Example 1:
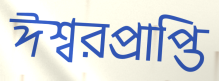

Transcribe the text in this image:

ঈশ্বরপ্রাপ্তি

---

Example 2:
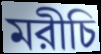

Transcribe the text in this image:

মরীচি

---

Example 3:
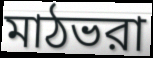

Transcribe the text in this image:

মাঠভরা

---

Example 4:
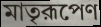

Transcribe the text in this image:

মাতৃরূপেণ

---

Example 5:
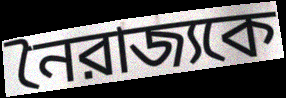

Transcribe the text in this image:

নৈরাজ্যকে